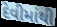
દેવીમાંથી